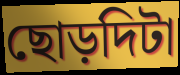
ছোড়দিটা